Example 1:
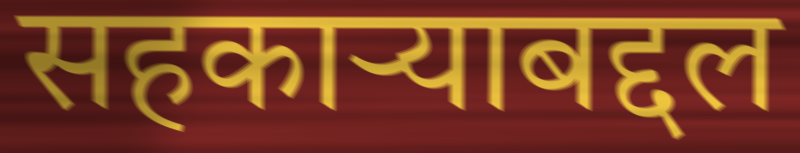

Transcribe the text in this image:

सहकाऱ्याबद्दल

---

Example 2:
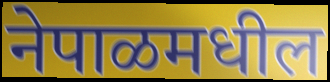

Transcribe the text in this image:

नेपाळमधील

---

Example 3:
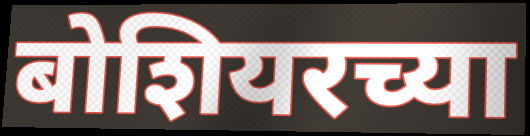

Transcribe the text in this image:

बोशियरच्या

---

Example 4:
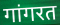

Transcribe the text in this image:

गांगरत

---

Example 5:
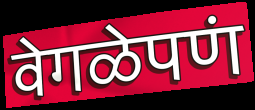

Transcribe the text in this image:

वेगळेपणं